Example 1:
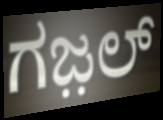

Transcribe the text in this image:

ಗಜ಼ಲ್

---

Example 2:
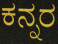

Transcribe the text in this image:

ಕನ್ನರ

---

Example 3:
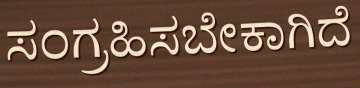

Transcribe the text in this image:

ಸಂಗ್ರಹಿಸಬೇಕಾಗಿದೆ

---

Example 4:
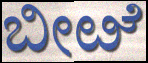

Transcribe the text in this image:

ಬೀೞೆ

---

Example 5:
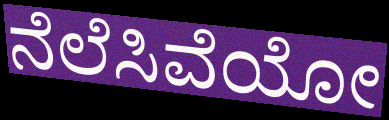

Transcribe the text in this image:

ನೆಲೆಸಿವೆಯೋ